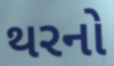
થરનો